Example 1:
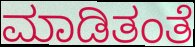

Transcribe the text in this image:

ಮಾಡಿತಂತೆ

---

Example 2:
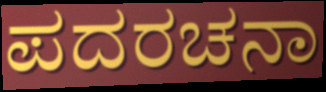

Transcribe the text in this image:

ಪದರಚನಾ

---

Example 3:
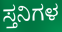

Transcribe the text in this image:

ಸ್ತನಿಗಳ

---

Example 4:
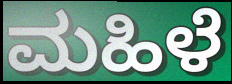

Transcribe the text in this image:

ಮಹಿಳೆ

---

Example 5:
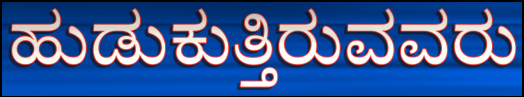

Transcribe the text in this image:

ಹುಡುಕುತ್ತಿರುವವರು